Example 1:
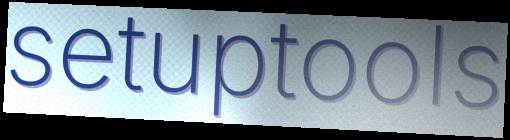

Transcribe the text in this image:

setuptools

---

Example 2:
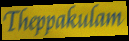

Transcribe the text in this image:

Theppakulam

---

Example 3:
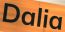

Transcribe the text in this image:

Dalia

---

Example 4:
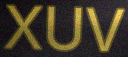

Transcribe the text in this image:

XUV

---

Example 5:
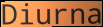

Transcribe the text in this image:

Diurna